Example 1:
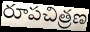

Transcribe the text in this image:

రూపచిత్రణ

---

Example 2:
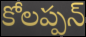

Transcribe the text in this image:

కోలప్పన్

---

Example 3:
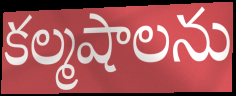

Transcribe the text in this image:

కల్మషాలను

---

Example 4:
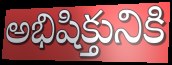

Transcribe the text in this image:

అభిషిక్తునికి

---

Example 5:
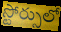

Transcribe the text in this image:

స్టోర్సులో